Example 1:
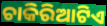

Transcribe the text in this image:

ଚାକିରିଆଟିଏ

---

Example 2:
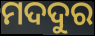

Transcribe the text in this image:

ମଦଦୁର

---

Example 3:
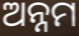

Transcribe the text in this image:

ଅନ୍ନମ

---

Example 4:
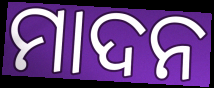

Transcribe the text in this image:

ମାଦନ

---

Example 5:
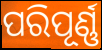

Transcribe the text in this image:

ପରିପୂର୍ଣ୍ଣ